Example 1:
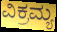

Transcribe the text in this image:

ವಿಕ್ರಮ್ಯ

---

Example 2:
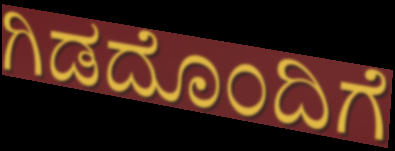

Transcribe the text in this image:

ಗಿಡದೊಂದಿಗೆ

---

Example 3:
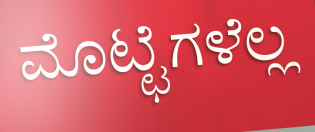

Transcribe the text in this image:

ಮೊಟ್ಟೆಗಳೆಲ್ಲ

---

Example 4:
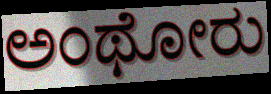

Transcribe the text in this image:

ಅಂಥೋರು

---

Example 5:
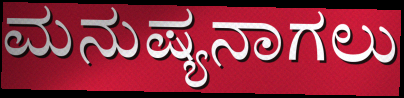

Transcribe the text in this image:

ಮನುಷ್ಯನಾಗಲು